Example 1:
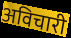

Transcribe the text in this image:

अविचारी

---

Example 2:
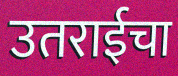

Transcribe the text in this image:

उतराईचा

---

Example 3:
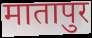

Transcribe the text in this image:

मातापुर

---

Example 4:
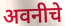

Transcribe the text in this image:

अवनीचे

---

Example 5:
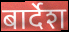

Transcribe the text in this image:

बार्देश